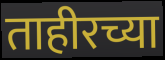
ताहीरच्या